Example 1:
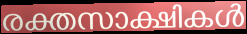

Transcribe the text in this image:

രക്തസാക്ഷികൾ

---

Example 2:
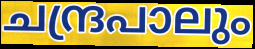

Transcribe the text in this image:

ചന്ദ്രപാലും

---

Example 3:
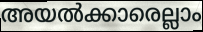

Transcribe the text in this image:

അയൽക്കാരെല്ലാം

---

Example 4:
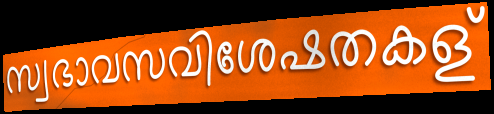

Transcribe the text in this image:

സ്വഭാവസവിശേഷതകള്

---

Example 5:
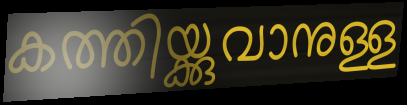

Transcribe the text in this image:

കത്തിയ്ക്കുവാനുള്ള